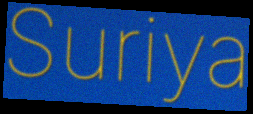
Suriya